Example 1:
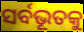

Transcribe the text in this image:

ସର୍ବଭୂତକୁ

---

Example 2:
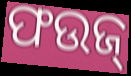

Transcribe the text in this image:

ଫଉଜ୍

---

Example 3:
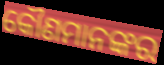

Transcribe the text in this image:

କୌଣମାନଙ୍କର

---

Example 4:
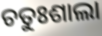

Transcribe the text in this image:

ଚତୁଃଶାଲା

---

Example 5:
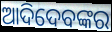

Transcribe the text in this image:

ଆଦିଦେବଙ୍କର